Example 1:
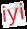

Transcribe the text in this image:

iyi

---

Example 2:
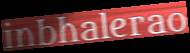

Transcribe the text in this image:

inbhalerao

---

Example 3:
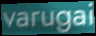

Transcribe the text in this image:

varugai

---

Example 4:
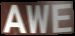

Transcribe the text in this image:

AWE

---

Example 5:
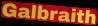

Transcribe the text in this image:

Galbraith